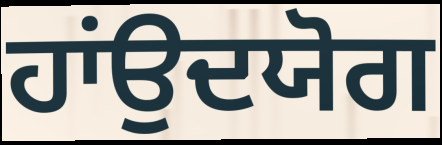
ਹਾਂਉਦਯੋਗ